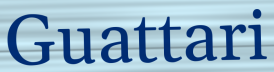
Guattari